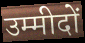
उम्मीदों